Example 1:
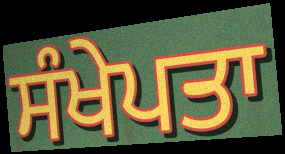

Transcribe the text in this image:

ਸੰਖੇਪਤਾ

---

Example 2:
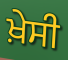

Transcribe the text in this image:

ਖ਼ੇਸੀ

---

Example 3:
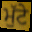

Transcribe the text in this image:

ਮੁੱਟੇ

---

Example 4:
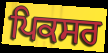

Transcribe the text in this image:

ਪਿਕਸਰ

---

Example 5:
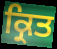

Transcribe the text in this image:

ਕ੍ਰਿਤ